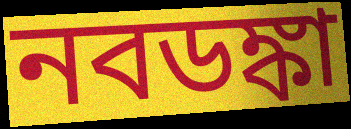
নবডঙ্কা